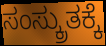
ಸಂಸ್ಕ್ರುತಕ್ಕೆ